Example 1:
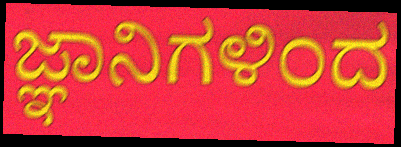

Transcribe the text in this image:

ಜ್ಞಾನಿಗಳಿಂದ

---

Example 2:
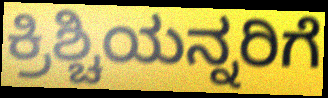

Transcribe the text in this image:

ಕ್ರಿಶ್ಚಿಯನ್ನರಿಗೆ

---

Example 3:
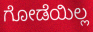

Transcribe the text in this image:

ಗೋಡೆಯಿಲ್ಲ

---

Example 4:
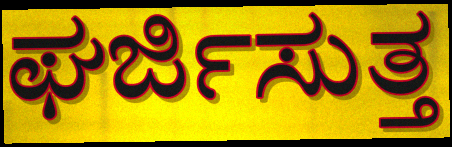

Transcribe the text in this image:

ಘರ್ಜಿಸುತ್ತ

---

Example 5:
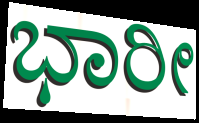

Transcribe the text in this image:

ಭಾರೀ